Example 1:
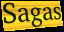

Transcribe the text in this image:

Sagas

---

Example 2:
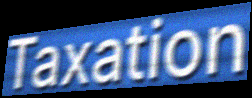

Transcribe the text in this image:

Taxation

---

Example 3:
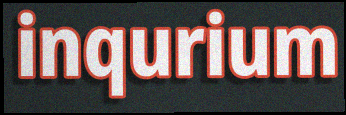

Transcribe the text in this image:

inqurium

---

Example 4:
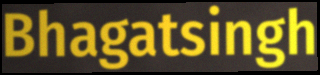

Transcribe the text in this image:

Bhagatsingh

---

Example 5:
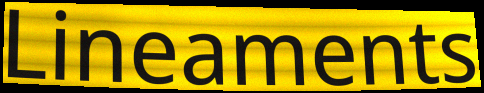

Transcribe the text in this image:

Lineaments